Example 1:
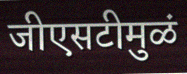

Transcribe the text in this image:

जीएसटीमुळं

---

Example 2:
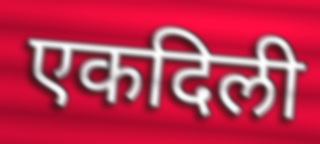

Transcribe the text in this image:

एकदिली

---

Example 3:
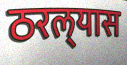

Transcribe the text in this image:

ठरल्यास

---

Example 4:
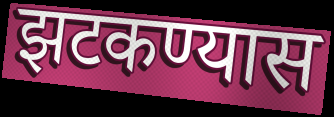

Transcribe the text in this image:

झटकण्यास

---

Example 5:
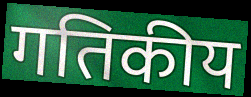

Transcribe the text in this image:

गतिकीय